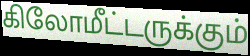
கிலோமீட்டருக்கும்